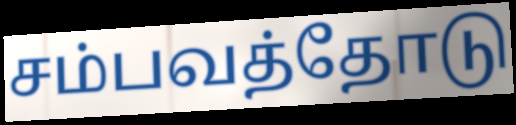
சம்பவத்தோடு